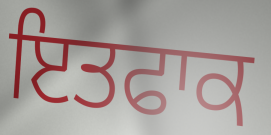
ਇਤਫਾਕ